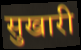
सुखारी